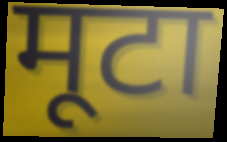
मूटा